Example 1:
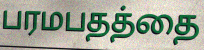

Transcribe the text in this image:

பரமபதத்தை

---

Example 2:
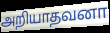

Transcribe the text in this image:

அறியாதவனா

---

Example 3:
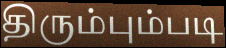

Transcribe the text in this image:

திரும்பும்படி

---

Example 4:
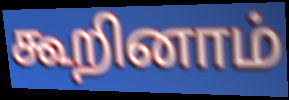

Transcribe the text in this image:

கூறினாம்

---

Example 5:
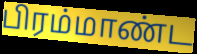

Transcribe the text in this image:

பிரம்மாண்ட